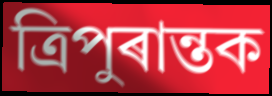
ত্ৰিপুৰান্তক